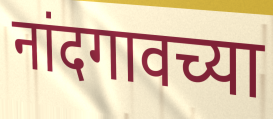
नांदगावच्या